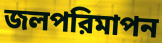
জলপরিমাপন